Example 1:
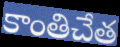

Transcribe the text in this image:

కాంతిచేత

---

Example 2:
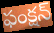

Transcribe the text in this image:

ఫంక్షన్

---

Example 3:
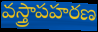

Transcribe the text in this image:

వస్త్రాపహరణ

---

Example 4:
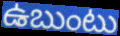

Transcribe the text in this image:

ఉబుంటు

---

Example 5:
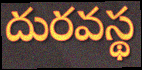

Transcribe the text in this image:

దురవస్థ